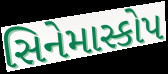
સિનેમાસ્કોપ